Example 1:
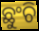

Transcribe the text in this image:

ଛୁଂଚି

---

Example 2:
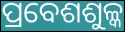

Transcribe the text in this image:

ପ୍ରବେଶଶୁଳ୍କ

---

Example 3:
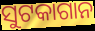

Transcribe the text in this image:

ସୁଟକାଗାନ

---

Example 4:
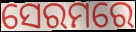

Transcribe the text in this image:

ସେରମରେ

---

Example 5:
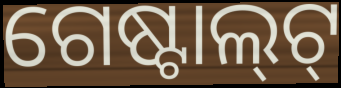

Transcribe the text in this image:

ଗେଷ୍ଟାଲ୍‌ଟ୍